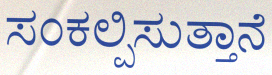
ಸಂಕಲ್ಪಿಸುತ್ತಾನೆ